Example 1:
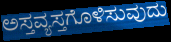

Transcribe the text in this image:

ಅಸ್ತವ್ಯಸ್ತಗೊಳಿಸುವುದು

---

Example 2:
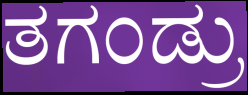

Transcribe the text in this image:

ತಗಂಡ್ರು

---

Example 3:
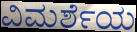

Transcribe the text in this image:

ವಿಮರ್ಶೆಯ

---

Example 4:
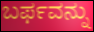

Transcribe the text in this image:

ಬರ್ಫವನ್ನು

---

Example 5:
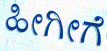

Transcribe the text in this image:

ಹೀಗೀಗೆ